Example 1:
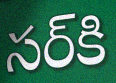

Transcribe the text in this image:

సర్‌కి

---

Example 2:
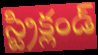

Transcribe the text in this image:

స్ట్రిక్లండ్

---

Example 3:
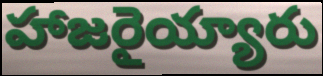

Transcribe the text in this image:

హాజరైయ్యారు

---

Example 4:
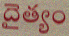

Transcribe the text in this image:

దైత్యం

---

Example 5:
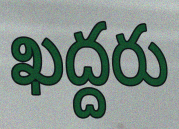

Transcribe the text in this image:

ఖద్దరు